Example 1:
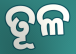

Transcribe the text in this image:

ତୂଳ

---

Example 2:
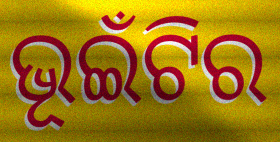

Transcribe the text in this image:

ଭୂଇଁଟିର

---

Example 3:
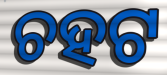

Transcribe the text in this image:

ଚହଟ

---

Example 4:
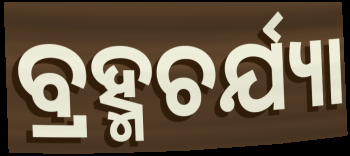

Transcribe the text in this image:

ବ୍ରହ୍ମଚର୍ଯ୍ୟା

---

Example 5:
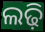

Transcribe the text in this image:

ଲଢ଼ି